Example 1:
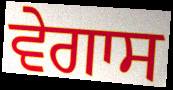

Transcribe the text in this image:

ਵੇਗਾਸ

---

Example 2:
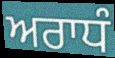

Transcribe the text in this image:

ਅਰਾਧੰ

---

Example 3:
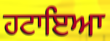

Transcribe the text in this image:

ਹਟਾਇਆ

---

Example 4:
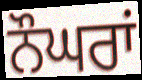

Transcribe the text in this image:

ਨੌਘਰਾਂ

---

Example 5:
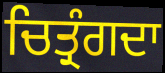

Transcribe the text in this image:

ਚਿਤ੍ਰੰਗਦਾ